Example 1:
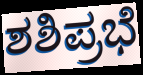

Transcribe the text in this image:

ಶಶಿಪ್ರಭೆ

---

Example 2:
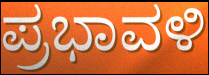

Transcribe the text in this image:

ಪ್ರಭಾವಳಿ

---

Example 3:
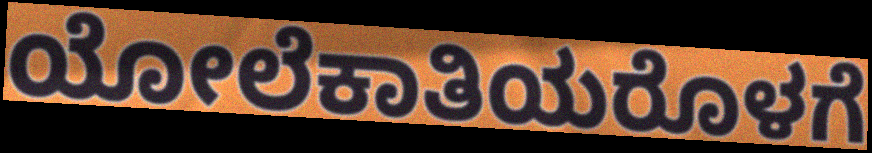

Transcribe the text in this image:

ಯೋಲೆಕಾತಿಯರೊಳಗೆ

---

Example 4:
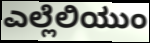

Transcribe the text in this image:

ಎಲ್ಲೆಲಿಯುಂ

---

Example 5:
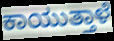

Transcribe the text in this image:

ಕಾಯುತ್ತಾಳೆ